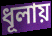
ধূলায়